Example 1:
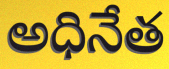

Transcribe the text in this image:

అధినేత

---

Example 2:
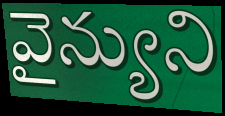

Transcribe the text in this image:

వైన్యుని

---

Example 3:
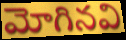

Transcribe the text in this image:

మోగినవి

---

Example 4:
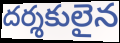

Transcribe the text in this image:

దర్శకులైన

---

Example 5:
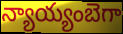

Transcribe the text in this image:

న్యాయ్యంబెగా